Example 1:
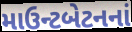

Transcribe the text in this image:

માઉન્ટબેટનનાં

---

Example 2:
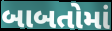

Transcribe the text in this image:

બાબતોમાં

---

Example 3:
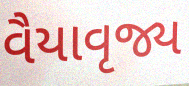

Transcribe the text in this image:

વૈયાવૃજ્ય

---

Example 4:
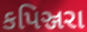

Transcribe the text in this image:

કપિઞ્જરા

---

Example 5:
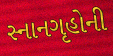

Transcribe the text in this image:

સ્નાનગૃહોની